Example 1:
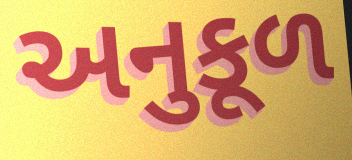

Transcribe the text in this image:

અનુકૂળ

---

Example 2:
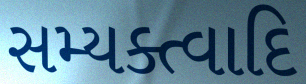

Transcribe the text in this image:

સમ્યક્ત્વાદિ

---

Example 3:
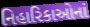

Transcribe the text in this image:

નિહારિકાઓનાં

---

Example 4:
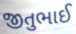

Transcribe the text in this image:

જીતુભાઈ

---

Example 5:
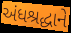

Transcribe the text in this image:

અંધશ્રદ્ધાને